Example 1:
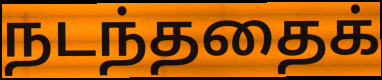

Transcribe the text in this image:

நடந்ததைக்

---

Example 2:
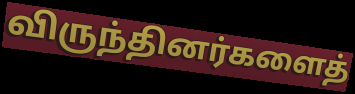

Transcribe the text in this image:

விருந்தினர்களைத்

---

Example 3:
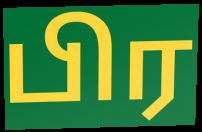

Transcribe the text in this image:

பிர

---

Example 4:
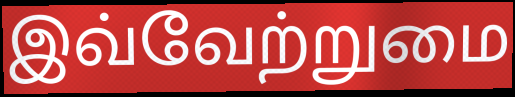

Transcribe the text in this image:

இவ்வேற்றுமை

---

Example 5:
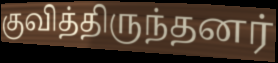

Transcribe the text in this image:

குவித்திருந்தனர்